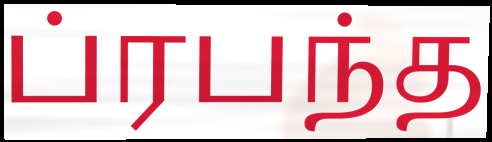
ப்ரபந்த